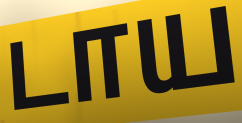
டாய